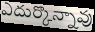
ఎదుర్కొన్నావు